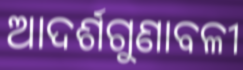
ଆଦର୍ଶଗୁଣାବଳୀ